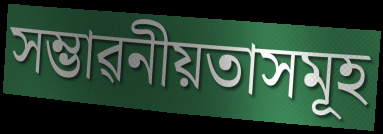
সম্ভাৱনীয়তাসমূহ